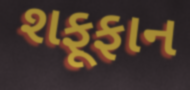
શફૂફાન